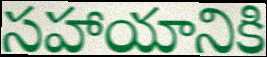
సహాయానికి